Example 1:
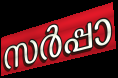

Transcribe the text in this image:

സർപ്പാ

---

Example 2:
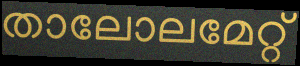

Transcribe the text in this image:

താലോലമേറ്റ്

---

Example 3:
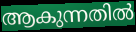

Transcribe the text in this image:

ആകുന്നതിൽ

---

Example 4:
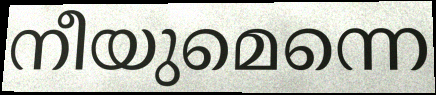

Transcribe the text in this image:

നീയുമെന്നെ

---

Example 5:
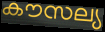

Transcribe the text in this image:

കൗസല്യ